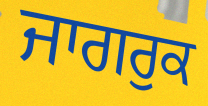
ਜਾਗਰੁਕ